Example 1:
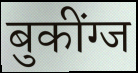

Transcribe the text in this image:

बुकींग्ज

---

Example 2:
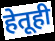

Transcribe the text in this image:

हेतूही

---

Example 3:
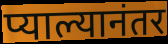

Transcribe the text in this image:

प्याल्यानंतर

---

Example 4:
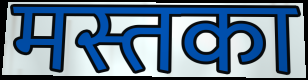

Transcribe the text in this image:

मस्तका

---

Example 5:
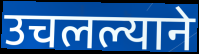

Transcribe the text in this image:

उचलल्याने